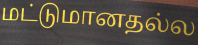
மட்டுமானதல்ல